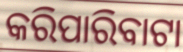
କରିପାରିବାଟା